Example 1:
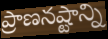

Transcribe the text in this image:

ప్రాణనష్టాన్ని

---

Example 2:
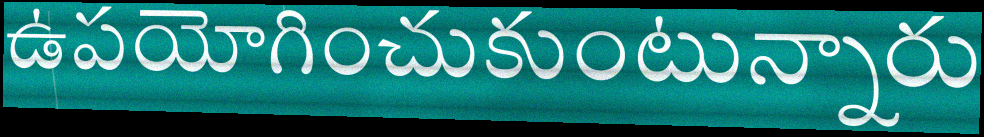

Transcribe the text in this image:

ఉపయోగించుకుంటున్నారు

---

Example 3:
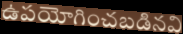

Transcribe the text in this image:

ఉపయోగించబడినవి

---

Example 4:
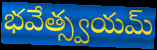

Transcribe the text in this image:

భవేత్స్వయమ్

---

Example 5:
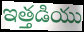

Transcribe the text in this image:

ఇత్తడియు